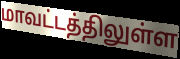
மாவட்டத்திலுள்ள